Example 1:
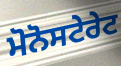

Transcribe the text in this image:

ਮੋਨੋਸਟੇਰੇਟ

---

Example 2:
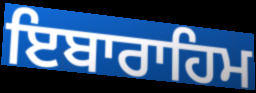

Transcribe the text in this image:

ਇਬਾਰਾਹਿਮ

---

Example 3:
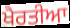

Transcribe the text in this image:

ਖੈਰਤੀਆ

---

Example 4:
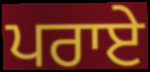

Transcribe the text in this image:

ਪਰਾਏ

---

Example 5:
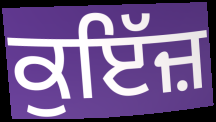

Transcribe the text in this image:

ਕੁਇੱਜ਼